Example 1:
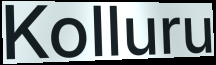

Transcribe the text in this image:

Kolluru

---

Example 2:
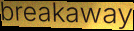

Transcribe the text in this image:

breakaway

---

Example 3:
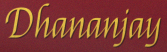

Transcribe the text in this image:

Dhananjay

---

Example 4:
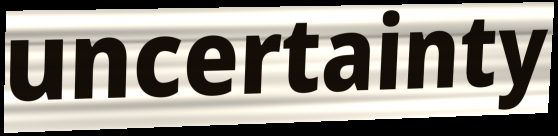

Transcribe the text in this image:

uncertainty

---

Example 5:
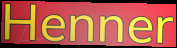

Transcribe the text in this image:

Henner